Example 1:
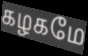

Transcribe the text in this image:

கழகமே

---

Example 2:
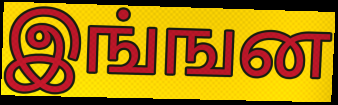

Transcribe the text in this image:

இங்ஙன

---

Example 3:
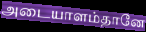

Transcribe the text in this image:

அடையாளம்தானே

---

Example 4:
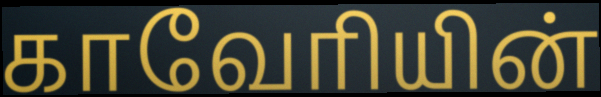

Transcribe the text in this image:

காவேரியின்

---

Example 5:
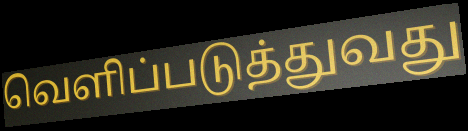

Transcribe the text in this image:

வெளிப்படுத்துவது